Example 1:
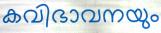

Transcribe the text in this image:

കവിഭാവനയും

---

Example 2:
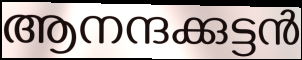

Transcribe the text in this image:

ആനന്ദക്കുട്ടൻ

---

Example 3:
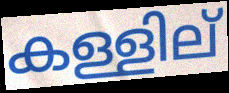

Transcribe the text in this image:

കള്ളില്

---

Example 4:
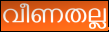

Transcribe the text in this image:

വീണതല്ല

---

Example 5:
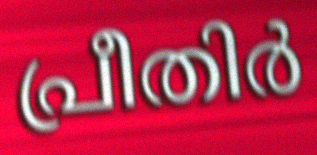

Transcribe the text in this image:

പ്രീതിർ